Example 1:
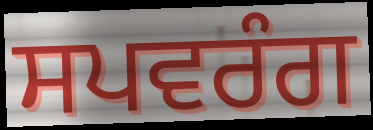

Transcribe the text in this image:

ਸਪਵਰੰਗ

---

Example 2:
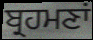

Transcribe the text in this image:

ਬ੍ਰਹਮਣਾਂ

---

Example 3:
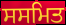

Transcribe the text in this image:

ਸਸਮਿਤ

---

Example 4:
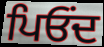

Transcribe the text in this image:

ਪਿਓਂਦ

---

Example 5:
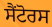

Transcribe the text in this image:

ਸੈਂਟੋਰਸ